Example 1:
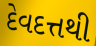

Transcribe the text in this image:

દેવદત્તથી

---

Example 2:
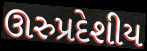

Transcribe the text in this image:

ઊરુપ્રદેશીય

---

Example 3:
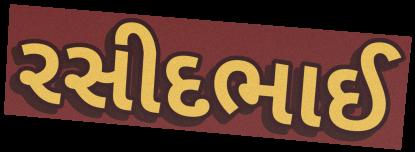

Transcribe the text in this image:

રસીદભાઈ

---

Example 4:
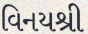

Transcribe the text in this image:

વિનયશ્રી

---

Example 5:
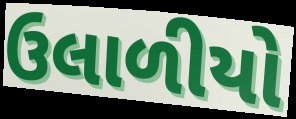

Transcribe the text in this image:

ઉલાળીયો